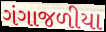
ગંગાજળીયા